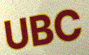
UBC